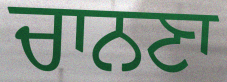
ਚਾਨਣਾ